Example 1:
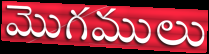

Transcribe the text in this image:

మొగములు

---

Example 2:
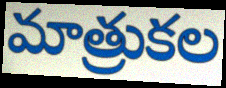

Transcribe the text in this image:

మాత్రుకల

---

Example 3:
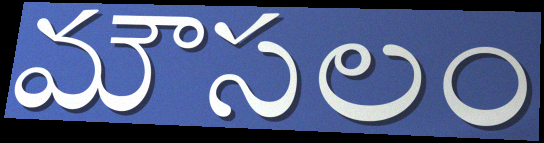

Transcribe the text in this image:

మౌసలం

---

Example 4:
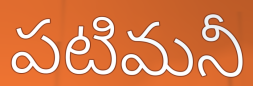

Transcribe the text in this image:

పటిమనీ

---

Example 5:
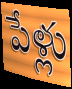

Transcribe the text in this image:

పేళ్లు